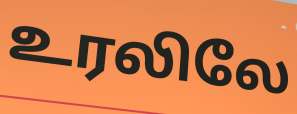
உரலிலே